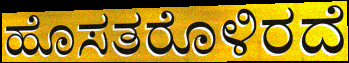
ಹೊಸತರೊಳಿರದೆ